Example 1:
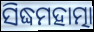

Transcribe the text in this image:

ସିଦ୍ଧମହାତ୍ମା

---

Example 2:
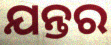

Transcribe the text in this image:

ଯନ୍ତର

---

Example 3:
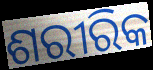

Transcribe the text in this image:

ଶରୀରିକ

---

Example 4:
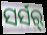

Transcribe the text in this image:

ସର୍ସର୍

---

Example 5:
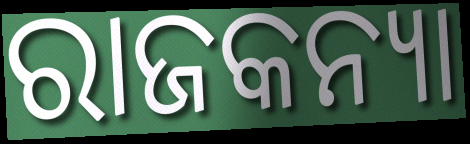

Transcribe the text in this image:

ରାଜକନ୍ୟା